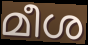
മീശ